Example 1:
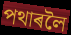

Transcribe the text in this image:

পথাৰলৈ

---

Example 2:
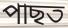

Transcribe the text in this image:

পাছত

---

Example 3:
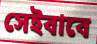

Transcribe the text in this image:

সেইবাবে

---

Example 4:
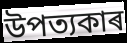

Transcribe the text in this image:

উপত্যকাৰ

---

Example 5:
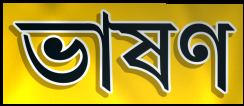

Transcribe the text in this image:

ভাষণ